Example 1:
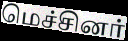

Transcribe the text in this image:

மெச்சினர்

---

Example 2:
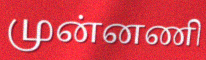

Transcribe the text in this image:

முன்னணி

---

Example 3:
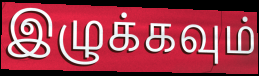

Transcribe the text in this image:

இழுக்கவும்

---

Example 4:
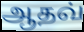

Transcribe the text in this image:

ஆதவ்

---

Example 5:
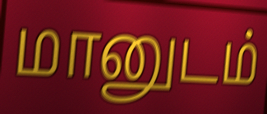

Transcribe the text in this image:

மானுடம்